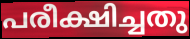
പരീക്ഷിച്ചതു